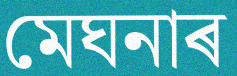
মেঘনাৰ